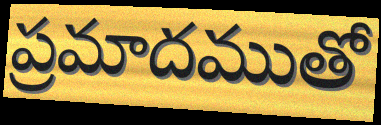
ప్రమాదముతో